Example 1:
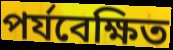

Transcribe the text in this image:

পৰ্যবেক্ষিত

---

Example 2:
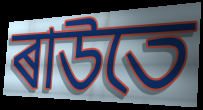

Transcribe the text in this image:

ৰাউতে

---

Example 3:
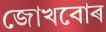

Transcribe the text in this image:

জোখবোৰ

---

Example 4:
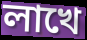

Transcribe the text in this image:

লাখে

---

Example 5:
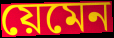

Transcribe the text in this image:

য়েমেন